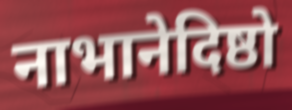
नाभानेदिष्ठो